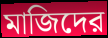
মাজিদের